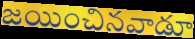
జయించినవాడూ